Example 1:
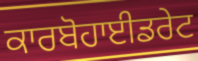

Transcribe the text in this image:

ਕਾਰਬੋਹਾਈਡਰੇਟ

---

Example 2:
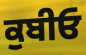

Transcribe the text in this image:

ਕੁਬੀਓ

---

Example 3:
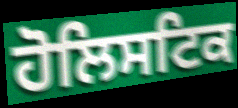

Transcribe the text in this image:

ਹੋਲਿਸਟਿਕ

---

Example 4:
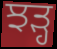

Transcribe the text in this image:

ਝੜ੍ਹ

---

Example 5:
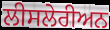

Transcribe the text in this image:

ਲੀਸਲੇਰੀਅਨ